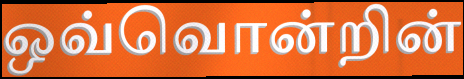
ஒவ்வொன்றின்